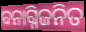
ବନାଗ୍ନିଜନିତ